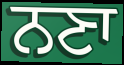
ਨਣਾ